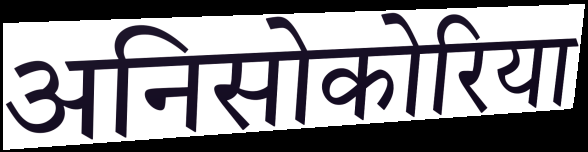
अनिसोकोरिया